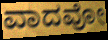
ವಾದವೋ